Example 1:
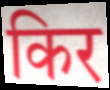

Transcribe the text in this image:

किर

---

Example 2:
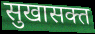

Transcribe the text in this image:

सुखासक्त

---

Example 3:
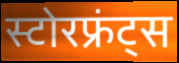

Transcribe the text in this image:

स्टोरफ्रंट्स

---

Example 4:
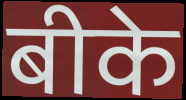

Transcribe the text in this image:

बीके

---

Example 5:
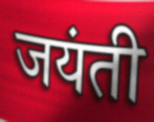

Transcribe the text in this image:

जयंती